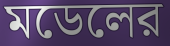
মডেলের